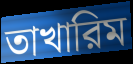
তাখারিম